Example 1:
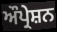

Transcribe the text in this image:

ਔਪ੍ਰੇਸ਼ਨ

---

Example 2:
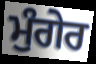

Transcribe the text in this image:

ਮੁੰਗੇਰ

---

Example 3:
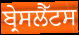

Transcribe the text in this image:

ਬ੍ਰੇਸਲੈੱਟਸ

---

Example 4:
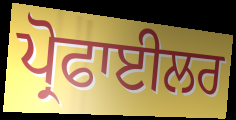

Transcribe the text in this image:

ਪ੍ਰੋਫਾਈਲਰ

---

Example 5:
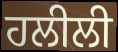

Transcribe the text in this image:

ਹਲੀਲੀ